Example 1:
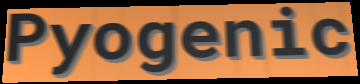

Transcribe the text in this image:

Pyogenic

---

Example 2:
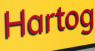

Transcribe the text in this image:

Hartog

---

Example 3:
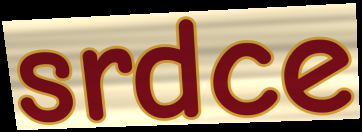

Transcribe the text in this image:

srdce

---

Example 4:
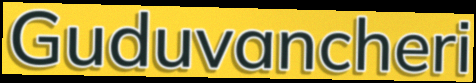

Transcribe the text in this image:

Guduvancheri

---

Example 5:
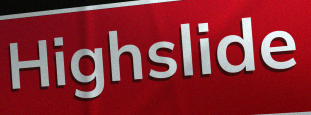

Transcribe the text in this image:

Highslide